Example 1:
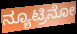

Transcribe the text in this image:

ನ್ಯೂಟ್ರಿನೋ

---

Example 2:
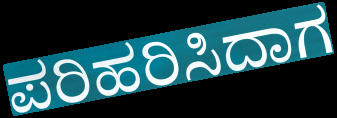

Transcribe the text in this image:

ಪರಿಹರಿಸಿದಾಗ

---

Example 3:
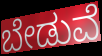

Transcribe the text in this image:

ಬೇಡುವೆ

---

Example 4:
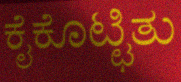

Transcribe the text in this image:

ಕೈಕೊಟ್ಟಿತು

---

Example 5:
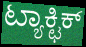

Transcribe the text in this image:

ಟ್ಯಾಕ್ಟಿಕ್